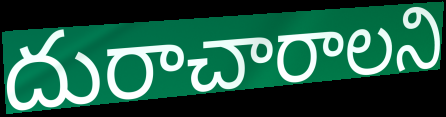
దురాచారాలని